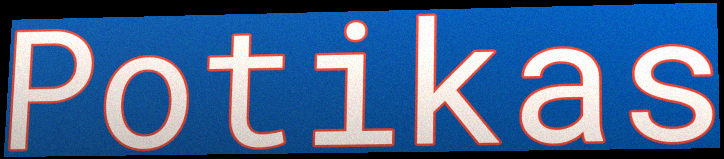
Potikas